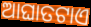
ଆଘାତଟାଏ